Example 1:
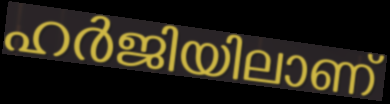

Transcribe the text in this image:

ഹർജിയിലാണ്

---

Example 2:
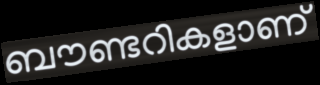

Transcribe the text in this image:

ബൗണ്ടറികളാണ്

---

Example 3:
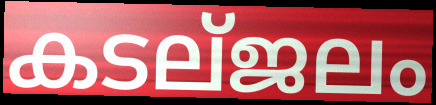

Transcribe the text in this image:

കടല്ജലം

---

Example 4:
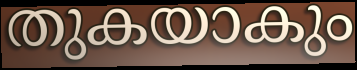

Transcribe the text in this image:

തുകയാകും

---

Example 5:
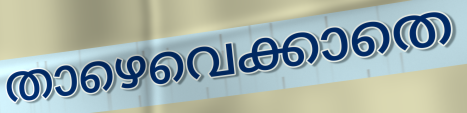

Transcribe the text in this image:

താഴെവെക്കാതെ